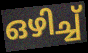
ഒഴിച്ച്